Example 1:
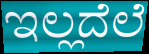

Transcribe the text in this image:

ಇಲ್ಲದೆಲೆ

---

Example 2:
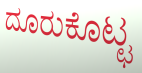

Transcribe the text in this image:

ದೂರುಕೊಟ್ಟ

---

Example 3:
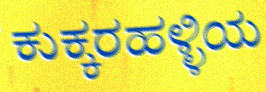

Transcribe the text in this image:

ಕುಕ್ಕರಹಳ್ಳಿಯ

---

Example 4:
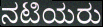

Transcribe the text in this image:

ನಟಿಯರು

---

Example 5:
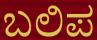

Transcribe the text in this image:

ಬಲಿಪ